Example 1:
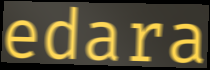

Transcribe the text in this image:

edara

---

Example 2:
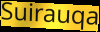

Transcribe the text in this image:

Suirauqa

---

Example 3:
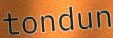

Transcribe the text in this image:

tondun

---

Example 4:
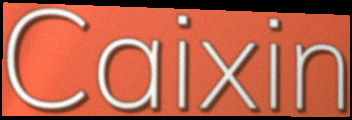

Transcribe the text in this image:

Caixin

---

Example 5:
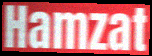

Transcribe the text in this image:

Hamzat